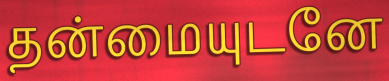
தன்மையுடனே